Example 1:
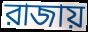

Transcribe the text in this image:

রাজায়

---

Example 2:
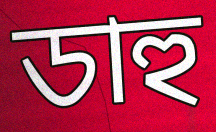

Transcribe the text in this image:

ডাহু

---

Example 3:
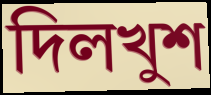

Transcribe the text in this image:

দিলখুশ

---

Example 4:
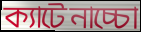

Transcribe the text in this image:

ক্যাটেনাচ্চো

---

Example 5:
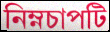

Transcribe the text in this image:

নিম্নচাপটি